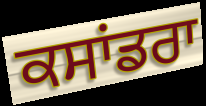
ਕਸਾਂਡਰਾ